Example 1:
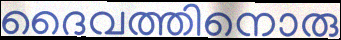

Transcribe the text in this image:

ദൈവത്തിനൊരു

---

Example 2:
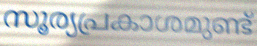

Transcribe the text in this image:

സൂര്യപ്രകാശമുണ്ട്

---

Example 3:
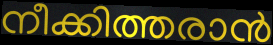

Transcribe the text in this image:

നീക്കിത്തരാൻ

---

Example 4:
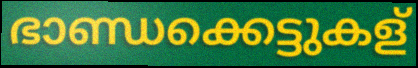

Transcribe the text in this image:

ഭാണ്ഡക്കെട്ടുകള്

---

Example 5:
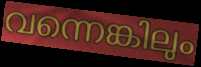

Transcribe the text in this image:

വന്നെങ്കിലും